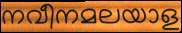
നവീനമലയാള